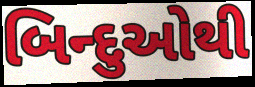
બિન્દુઓથી